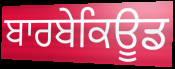
ਬਾਰਬੇਕਿਊਡ